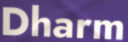
Dharm